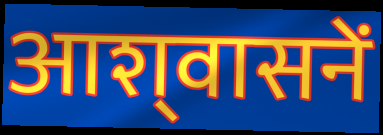
आश्वासनें